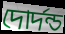
দোর্দন্ড